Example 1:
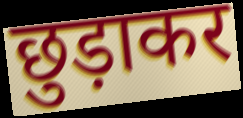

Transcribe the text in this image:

छुड़ाकर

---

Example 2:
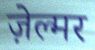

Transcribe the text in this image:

ज़ेल्मर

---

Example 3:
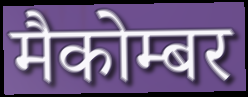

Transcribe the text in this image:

मैकोम्बर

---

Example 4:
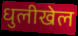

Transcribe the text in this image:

धुलीखेल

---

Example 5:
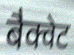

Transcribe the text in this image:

बैक्वेट